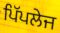
ਪਿੱਪਲੇਜ